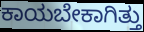
ಕಾಯಬೇಕಾಗಿತ್ತು